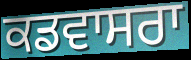
ਕਡਵਾਸਰਾ